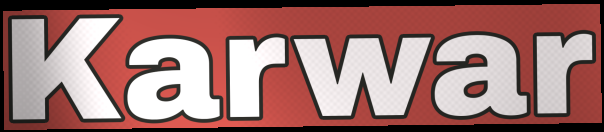
Karwar